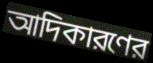
আদিকারণের